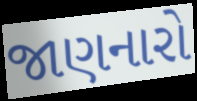
જાણનારો